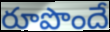
రూపొందే